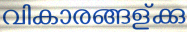
വികാരങ്ങള്ക്കു